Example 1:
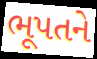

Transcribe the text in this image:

ભૂપતને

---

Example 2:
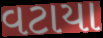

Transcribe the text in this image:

વટાયા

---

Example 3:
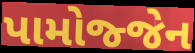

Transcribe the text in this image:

પામોજ્જેન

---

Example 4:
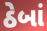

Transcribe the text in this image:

ઠેબાં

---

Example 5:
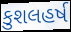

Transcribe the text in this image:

કુશલહર્ષ